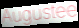
Augustee